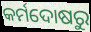
କର୍ମଦୋଷରୁ